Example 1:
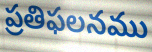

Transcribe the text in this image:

ప్రతిఫలనము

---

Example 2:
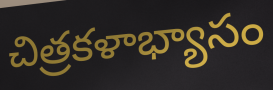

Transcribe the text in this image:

చిత్రకళాభ్యాసం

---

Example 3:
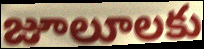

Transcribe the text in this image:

జూలూలకు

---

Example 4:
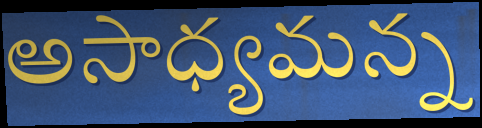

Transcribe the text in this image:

అసాధ్యమన్న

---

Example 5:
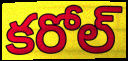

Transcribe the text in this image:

కరోల్